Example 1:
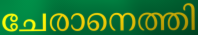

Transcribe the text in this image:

ചേരാനെത്തി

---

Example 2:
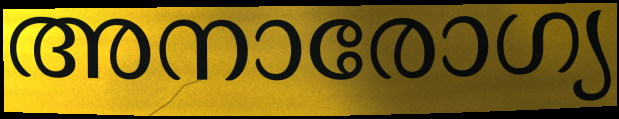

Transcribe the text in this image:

അനാരോഗ്യ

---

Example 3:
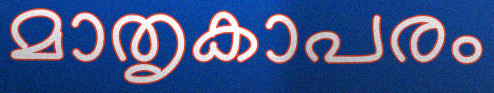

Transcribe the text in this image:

മാതൃകാപരം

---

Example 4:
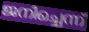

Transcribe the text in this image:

ജനിച്ചെന്ന്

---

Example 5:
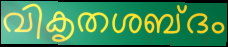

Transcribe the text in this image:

വികൃതശബ്ദം